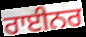
ਰਾਈਨਰ